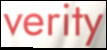
verity